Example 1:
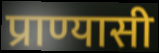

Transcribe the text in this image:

प्राण्यासी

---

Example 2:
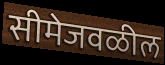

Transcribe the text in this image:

सीमेजवळील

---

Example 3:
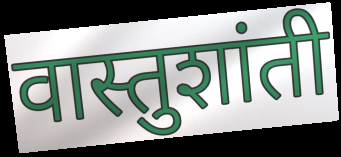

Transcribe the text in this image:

वास्तुशांती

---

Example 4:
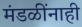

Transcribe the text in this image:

मंडळींनाही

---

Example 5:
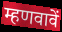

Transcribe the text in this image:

म्हणवावें